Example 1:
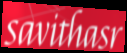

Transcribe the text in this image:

savithasr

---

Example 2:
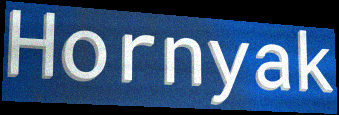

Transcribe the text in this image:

Hornyak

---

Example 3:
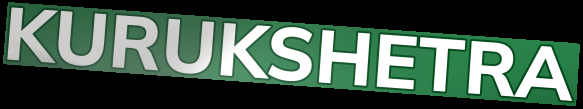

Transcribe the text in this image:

KURUKSHETRA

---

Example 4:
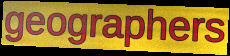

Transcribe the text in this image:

geographers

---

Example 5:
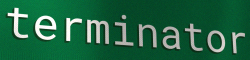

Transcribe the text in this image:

terminator